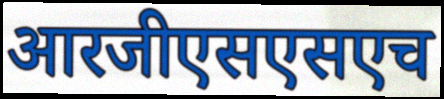
आरजीएसएसएच